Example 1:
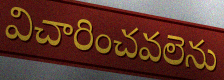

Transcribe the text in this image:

విచారించవలెను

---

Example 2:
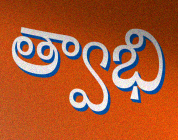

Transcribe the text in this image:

త్వాభి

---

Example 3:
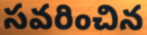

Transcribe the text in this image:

సవరించిన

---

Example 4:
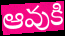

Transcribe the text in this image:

ఆవుకి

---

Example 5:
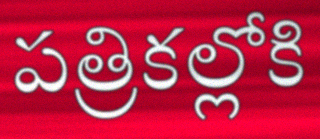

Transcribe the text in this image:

పత్రికల్లోకి